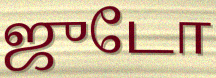
ஜுடோ